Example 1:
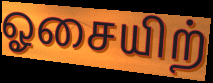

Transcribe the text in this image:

ஓசையிற்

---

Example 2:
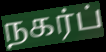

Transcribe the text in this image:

நகர்ப்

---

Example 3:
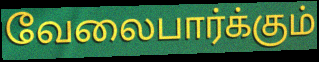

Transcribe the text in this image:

வேலைபார்க்கும்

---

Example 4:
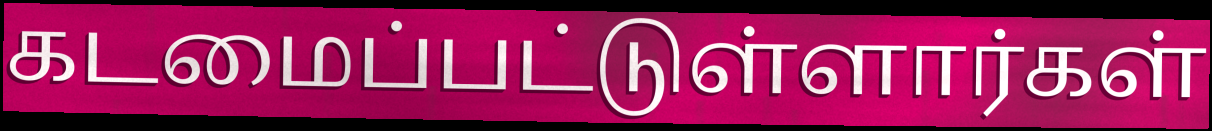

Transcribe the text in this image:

கடமைப்பட்டுள்ளார்கள்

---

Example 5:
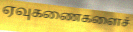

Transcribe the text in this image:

ஏவுகணைகளைச்